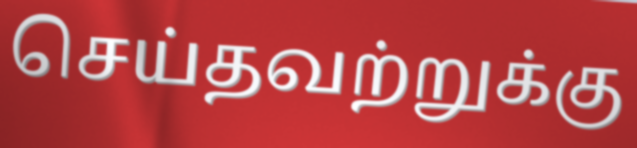
செய்தவற்றுக்கு